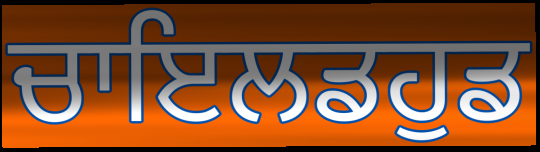
ਚਾਇਲਡਹੁਡ